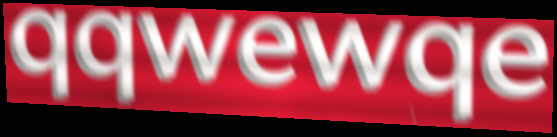
qqwewqe